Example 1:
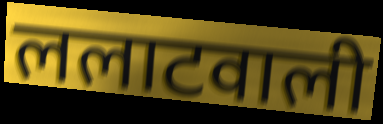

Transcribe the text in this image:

ललाटवाली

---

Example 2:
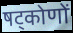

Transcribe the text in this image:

षट्कोणों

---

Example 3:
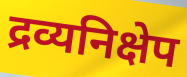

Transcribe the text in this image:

द्रव्यनिक्षेप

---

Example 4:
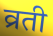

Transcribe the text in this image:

व्रती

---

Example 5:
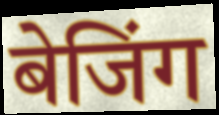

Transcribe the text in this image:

बेजिंग